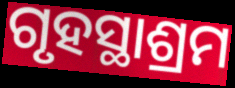
ଗୃହସ୍ଥାଶ୍ରମ